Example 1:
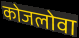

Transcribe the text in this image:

कोजलोवा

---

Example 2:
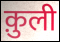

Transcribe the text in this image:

क़ुली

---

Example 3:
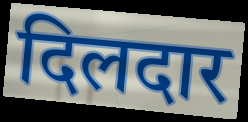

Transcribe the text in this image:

दिलदार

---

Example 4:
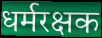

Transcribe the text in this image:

धर्मरक्षक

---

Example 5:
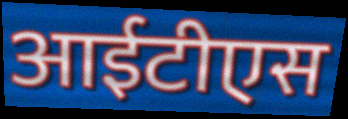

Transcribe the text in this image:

आईटीएस